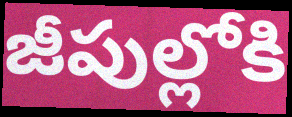
జీపుల్లోకి